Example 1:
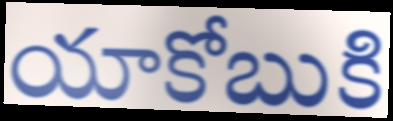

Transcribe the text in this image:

యాకోబుకి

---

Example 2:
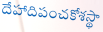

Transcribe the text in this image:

దేహాదిపంచకోశస్థా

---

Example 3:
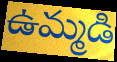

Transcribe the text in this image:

ఉమ్మడి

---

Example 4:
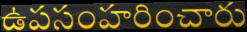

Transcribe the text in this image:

ఉపసంహరించారు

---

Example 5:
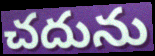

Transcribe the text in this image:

చదును